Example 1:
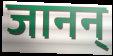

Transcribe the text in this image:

जानन्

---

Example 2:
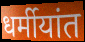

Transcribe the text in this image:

धर्मीयांत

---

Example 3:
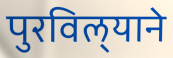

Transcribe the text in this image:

पुरविल्याने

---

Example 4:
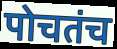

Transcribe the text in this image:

पोचतंच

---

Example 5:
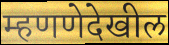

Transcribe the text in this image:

म्हणणेदेखील